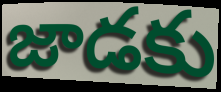
జాడకు